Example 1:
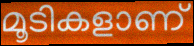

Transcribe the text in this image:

മൂടികളാണ്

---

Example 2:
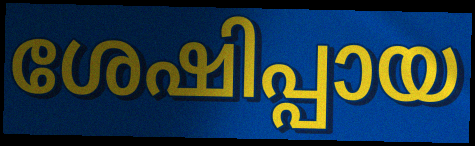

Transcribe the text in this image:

ശേഷിപ്പായ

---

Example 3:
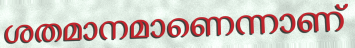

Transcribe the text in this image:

ശതമാനമാണെന്നാണ്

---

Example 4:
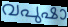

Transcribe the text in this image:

വപുഷാ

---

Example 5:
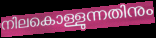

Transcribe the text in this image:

നിലകൊള്ളുന്നതിനും